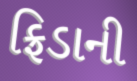
ફ્રિડાની